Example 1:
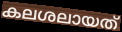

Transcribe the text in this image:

കലശലായത്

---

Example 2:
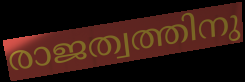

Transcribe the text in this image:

രാജത്വത്തിനു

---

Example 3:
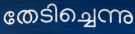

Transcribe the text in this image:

തേടിച്ചെന്നു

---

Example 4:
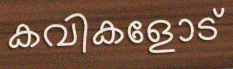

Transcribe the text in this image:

കവികളോട്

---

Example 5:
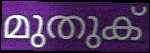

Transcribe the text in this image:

മുതുക്